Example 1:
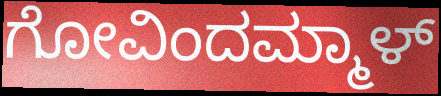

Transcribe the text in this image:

ಗೋವಿಂದಮ್ಮಾಳ್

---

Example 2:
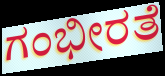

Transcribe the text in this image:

ಗಂಭೀರತೆ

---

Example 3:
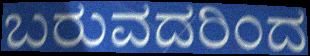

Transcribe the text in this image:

ಬರುವದರಿಂದ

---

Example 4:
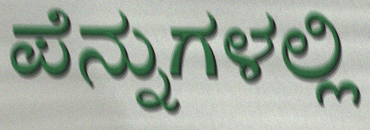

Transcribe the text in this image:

ಪೆನ್ನುಗಳಲ್ಲಿ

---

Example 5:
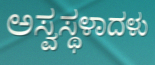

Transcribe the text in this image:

ಅಸ್ವಸ್ಥಳಾದಳು